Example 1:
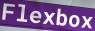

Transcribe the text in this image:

Flexbox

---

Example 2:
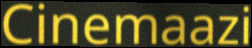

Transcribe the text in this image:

Cinemaazi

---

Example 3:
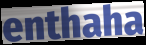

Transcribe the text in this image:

enthaha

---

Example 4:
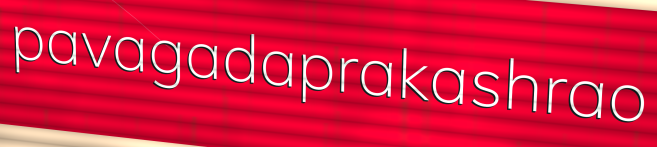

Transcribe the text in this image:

pavagadaprakashrao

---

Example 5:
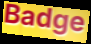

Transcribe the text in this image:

Badge